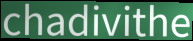
chadivithe